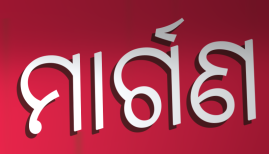
ମାର୍ଗଣ